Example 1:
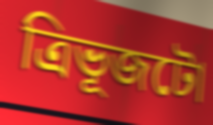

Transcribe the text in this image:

ত্ৰিভূজটো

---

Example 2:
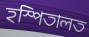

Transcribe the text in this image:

হস্পিতালত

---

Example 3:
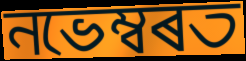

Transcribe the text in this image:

নভেম্বৰত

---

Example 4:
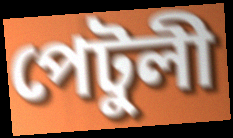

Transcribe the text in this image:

পেটুলী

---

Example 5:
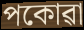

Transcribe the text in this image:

পকোৱা